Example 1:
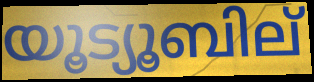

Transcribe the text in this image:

യൂട്യൂബില്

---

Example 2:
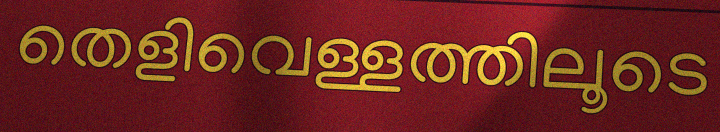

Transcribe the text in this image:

തെളിവെള്ളത്തിലൂടെ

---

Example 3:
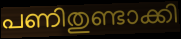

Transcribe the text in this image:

പണിതുണ്ടാക്കി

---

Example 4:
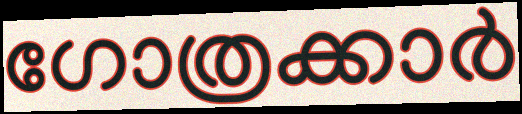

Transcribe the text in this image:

ഗോത്രക്കാർ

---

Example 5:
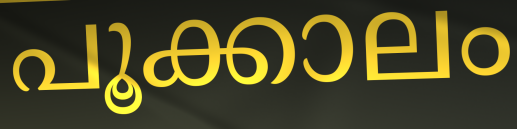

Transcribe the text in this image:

പൂക്കാലം